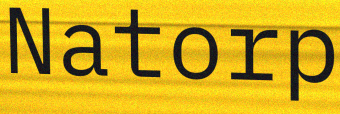
Natorp